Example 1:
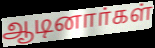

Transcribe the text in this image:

ஆடினார்கள்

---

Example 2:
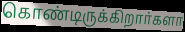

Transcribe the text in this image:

கொண்டிருக்கிறார்களா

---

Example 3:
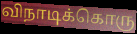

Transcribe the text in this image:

விநாடிக்கொரு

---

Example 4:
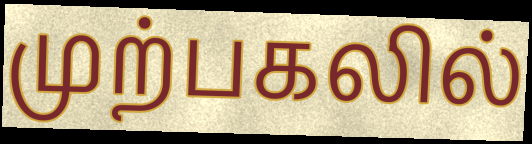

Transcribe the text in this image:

முற்பகலில்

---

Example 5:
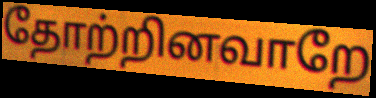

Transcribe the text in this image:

தோற்றினவாறே